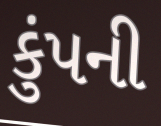
કુંપની